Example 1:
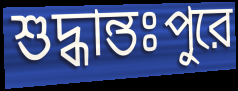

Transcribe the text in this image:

শুদ্ধান্তঃপুরে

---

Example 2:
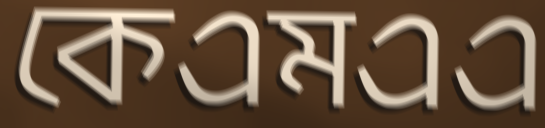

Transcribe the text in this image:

কেএমএএ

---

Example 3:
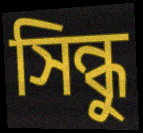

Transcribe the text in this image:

সিন্ধু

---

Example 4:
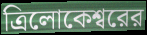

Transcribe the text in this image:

ত্রিলোকেশ্বরের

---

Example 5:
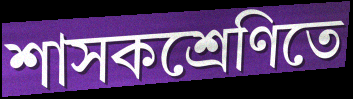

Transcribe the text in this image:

শাসকশ্রেণিতে